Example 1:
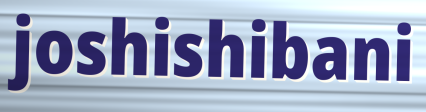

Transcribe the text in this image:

joshishibani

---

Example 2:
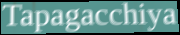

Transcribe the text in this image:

Tapagacchiya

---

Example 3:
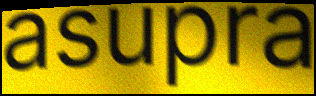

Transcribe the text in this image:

asupra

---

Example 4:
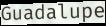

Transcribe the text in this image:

Guadalupe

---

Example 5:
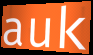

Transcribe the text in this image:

auk